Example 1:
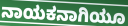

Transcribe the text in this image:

ನಾಯಕನಾಗಿಯೂ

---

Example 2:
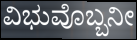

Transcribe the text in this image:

ವಿಭುವೊಬ್ಬನೀ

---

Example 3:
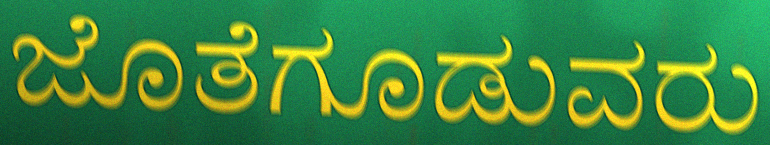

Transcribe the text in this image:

ಜೊತೆಗೂಡುವರು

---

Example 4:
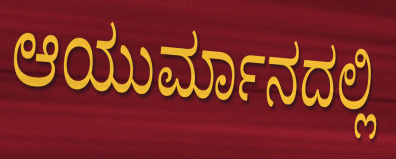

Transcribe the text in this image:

ಆಯುರ್ಮಾನದಲ್ಲಿ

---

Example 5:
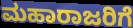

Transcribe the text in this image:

ಮಹಾರಾಜರಿಗೆ